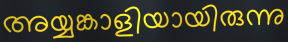
അയ്യങ്കാളിയായിരുന്നു